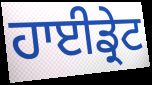
ਹਾਈਡ੍ਰੇਟ